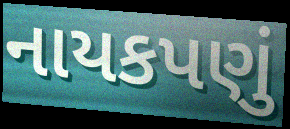
નાયકપણું